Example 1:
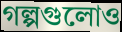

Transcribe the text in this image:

গল্পগুলোও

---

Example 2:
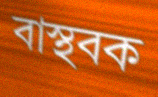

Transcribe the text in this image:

বাস্থবক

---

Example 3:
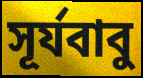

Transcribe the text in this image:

সূর্যবাবু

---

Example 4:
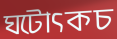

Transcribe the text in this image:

ঘটোৎকচ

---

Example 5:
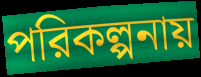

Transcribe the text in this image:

পরিকল্পনায়